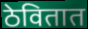
ठेवितात